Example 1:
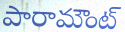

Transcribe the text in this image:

పారామౌంట్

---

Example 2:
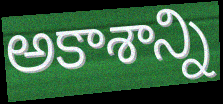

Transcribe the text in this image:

అకాశాన్ని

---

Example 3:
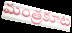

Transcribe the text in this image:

మంత్రకూట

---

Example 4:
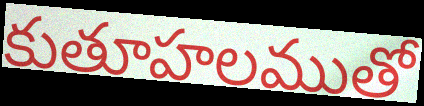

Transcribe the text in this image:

కుతూహలముతో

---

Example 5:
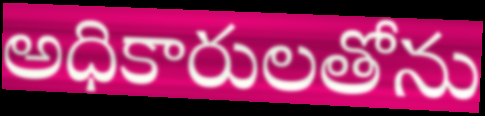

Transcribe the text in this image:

అధికారులతోను